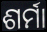
ଶର୍ମା